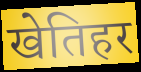
खेतिहर